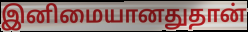
இனிமையானதுதான்